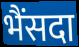
भैंसदा